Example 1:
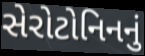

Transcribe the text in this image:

સેરોટોનિનનું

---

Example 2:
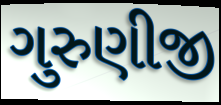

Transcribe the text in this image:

ગુરુણીજી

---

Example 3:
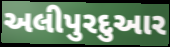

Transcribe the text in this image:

અલીપુરદુઆર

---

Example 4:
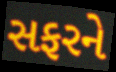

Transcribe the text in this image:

સફરને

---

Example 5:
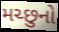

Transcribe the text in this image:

મચ્છુનો